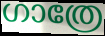
ഗാത്രേ